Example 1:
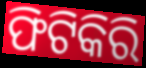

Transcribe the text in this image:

ଫିଟିକିରି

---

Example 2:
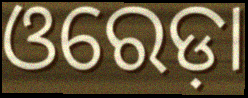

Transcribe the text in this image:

ଓରେଡ଼ା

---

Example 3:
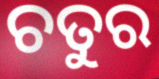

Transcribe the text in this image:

ଚତୁର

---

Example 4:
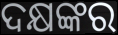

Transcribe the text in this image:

ଦକ୍ଷଙ୍କର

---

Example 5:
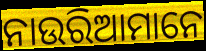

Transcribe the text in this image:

ନାଉରିଆମାନେ